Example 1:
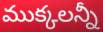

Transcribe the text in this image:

ముక్కలన్నీ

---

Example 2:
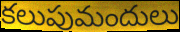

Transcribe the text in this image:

కలుపుమందులు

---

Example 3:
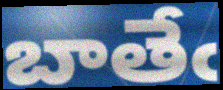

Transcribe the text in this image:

బాతేఁ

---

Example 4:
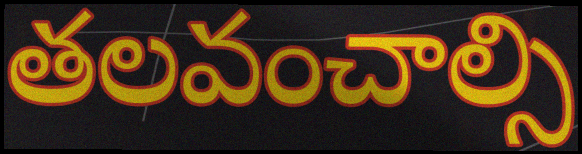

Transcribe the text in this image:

తలవంచాల్సి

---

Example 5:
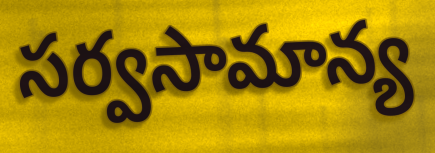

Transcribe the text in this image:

సర్వసామాన్య